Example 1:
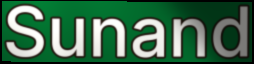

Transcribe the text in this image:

Sunand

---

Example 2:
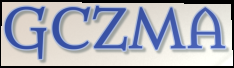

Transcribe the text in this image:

GCZMA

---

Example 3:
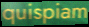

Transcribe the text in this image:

quispiam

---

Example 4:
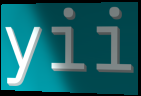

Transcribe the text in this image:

yii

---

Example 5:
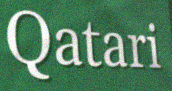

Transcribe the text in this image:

Qatari